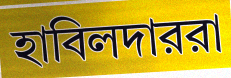
হাবিলদাররা